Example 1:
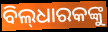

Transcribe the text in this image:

ବିଲ୍‌ଧାରକଙ୍କୁ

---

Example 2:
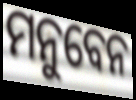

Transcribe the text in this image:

ମନୁବେନ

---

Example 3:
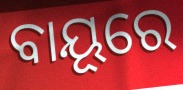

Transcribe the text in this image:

ବାୟୂରେ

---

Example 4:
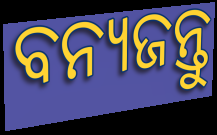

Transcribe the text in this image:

ବନ୍ୟଜନ୍ତୁ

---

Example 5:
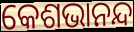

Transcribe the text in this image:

କେଶଭାନନ୍ଦ